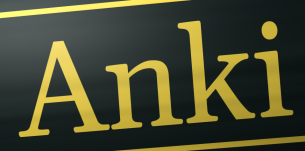
Anki